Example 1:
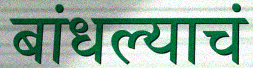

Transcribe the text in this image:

बांधल्याचं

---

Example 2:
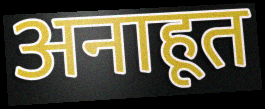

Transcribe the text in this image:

अनाहूत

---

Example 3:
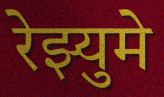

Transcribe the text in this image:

रेझ्युमे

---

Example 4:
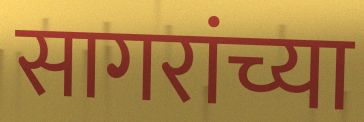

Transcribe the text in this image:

सागरांच्या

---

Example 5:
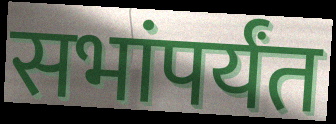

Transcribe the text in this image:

सभांपर्यंत